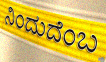
ನಿಂದುದೆಂಬ